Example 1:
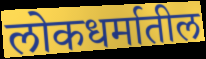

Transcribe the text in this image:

लोकधर्मातील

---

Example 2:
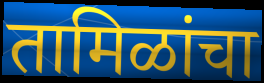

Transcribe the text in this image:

तामिळांचा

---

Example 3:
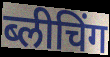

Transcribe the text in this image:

ब्लीचिंग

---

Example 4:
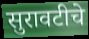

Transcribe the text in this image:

सुरावटीचे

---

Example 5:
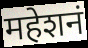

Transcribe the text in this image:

महेशनं